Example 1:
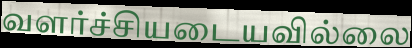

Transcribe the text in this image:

வளர்ச்சியடையவில்லை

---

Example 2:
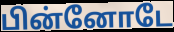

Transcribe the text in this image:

பின்னோடே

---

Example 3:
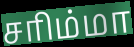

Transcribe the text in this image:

சரிம்மா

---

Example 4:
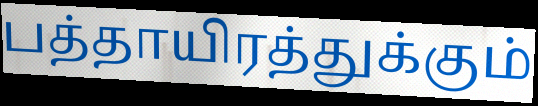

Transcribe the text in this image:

பத்தாயிரத்துக்கும்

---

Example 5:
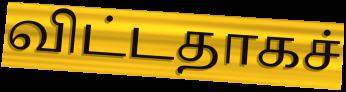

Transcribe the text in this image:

விட்டதாகச்